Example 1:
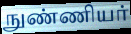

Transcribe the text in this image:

நுண்ணியர்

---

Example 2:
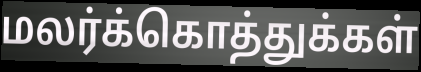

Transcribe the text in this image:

மலர்க்கொத்துக்கள்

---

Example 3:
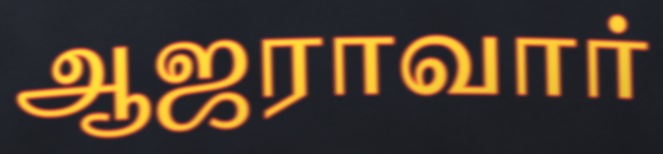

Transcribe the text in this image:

ஆஜராவார்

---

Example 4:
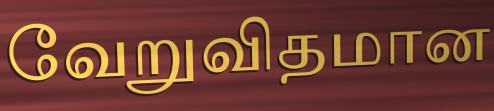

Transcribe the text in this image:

வேறுவிதமான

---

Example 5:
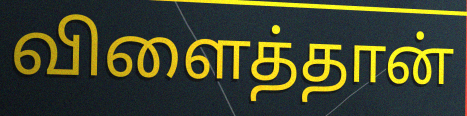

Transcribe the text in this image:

விளைத்தான்